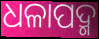
ଧଳାପଦ୍ମ